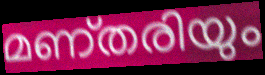
മണ്തരിയും